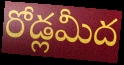
రోడ్లమీద